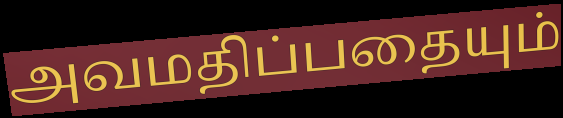
அவமதிப்பதையும்